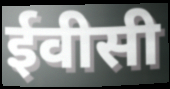
ईवीसी